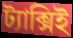
ট্যাক্সিই